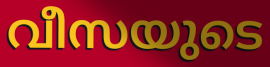
വീസയുടെ